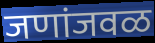
जणांजवळ